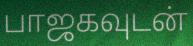
பாஜகவுடன்